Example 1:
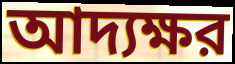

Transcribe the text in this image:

আদ্যক্ষর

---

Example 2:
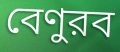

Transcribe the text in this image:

বেণুরব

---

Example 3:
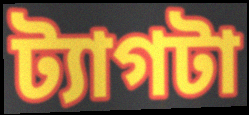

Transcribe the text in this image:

ট্যাগটা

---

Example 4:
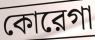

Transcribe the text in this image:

কোরেগা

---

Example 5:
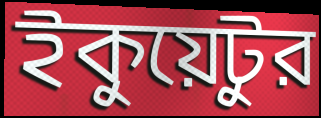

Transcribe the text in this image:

ইকুয়েটুর